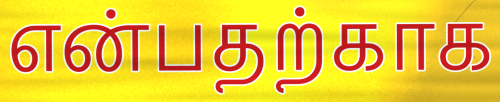
என்பதற்காக